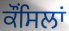
ਕੌਂਸਿਲਾਂ